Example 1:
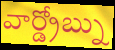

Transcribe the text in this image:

వార్డ్రోబ్ను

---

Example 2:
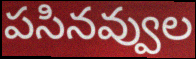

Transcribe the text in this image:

పసినవ్వుల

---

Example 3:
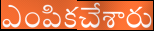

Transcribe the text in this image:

ఎంపికచేశారు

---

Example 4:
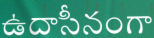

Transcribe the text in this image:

ఉదాసీనంగా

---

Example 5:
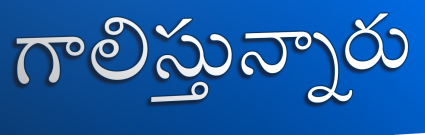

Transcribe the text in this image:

గాలిస్తున్నారు